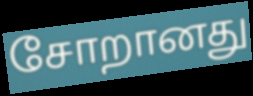
சோறானது